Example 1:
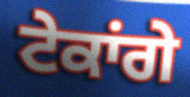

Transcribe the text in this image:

ਟੇਕਾਂਗੇ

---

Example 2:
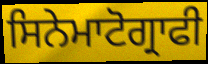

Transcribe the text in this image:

ਸਿਨੇਮਾਟੋਗ੍ਰਾਫੀ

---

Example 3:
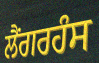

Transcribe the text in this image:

ਲੈਂਗਰਹੰਸ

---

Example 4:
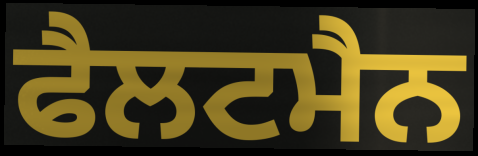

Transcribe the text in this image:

ਫੈਲਟਮੈਨ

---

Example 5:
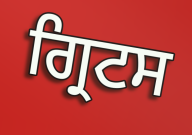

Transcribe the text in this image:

ਗ੍ਰਿਟਸ